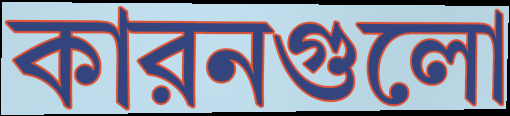
কারনগুলো